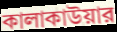
কালাকাউয়ার